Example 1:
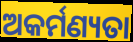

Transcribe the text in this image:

ଅକର୍ମଣ୍ୟତା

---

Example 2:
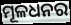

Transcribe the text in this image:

ମୂଳଧନର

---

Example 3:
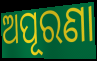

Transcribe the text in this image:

ଅପୂରଣା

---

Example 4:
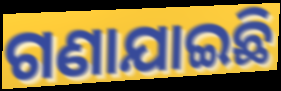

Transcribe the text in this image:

ଗଣାଯାଇଛି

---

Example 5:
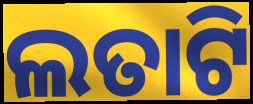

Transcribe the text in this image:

ଲତାଟି